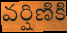
వర్షిణికి